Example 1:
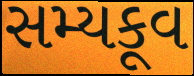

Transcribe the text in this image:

સમ્યકૂવ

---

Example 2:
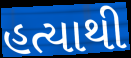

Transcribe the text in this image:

હત્યાથી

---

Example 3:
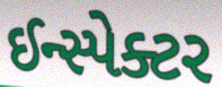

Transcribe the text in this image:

ઈન્સ્પેક્ટર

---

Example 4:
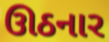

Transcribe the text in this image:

ઊઠનાર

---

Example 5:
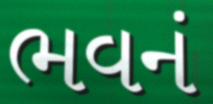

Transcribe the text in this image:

ભવનં